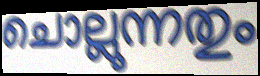
ചൊല്ലുന്നതും